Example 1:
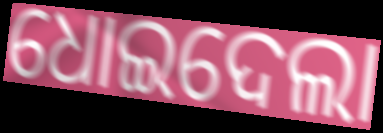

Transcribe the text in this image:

ଧୋଇଦେଲା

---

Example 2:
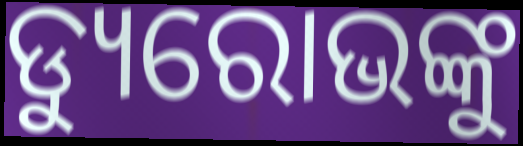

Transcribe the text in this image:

ଡ୍ୟୁରୋଭଙ୍କୁ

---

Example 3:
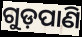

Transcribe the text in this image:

ଗୁଡ଼ପାଣି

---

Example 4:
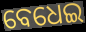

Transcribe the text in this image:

ବେଧେଇ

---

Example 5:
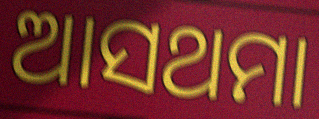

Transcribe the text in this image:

ଆସଥମା